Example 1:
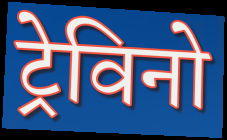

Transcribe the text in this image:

ट्रेविनो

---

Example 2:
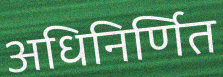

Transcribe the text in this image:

अधिनिर्णित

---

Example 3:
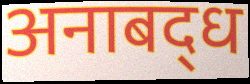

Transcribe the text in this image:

अनाबद्ध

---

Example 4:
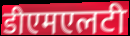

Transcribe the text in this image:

डीएमएलटी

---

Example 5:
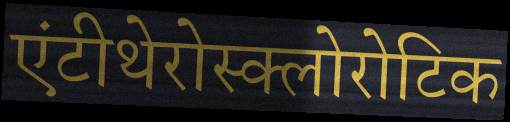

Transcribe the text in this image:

एंटीथेरोस्क्लोरोटिक